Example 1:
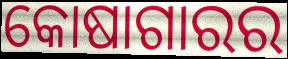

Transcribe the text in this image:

କୋଷାଗାରର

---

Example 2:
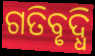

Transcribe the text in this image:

ଗତିବୃଦ୍ଧି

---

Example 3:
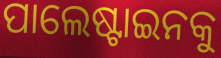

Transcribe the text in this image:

ପାଲେଷ୍ଟାଇନକୁ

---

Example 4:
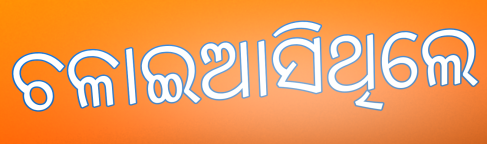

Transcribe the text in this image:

ଚଳାଇଆସିଥିଲେ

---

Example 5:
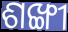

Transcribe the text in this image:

ଶଙ୍ଖୀ